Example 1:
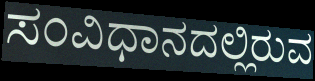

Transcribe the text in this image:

ಸಂವಿಧಾನದಲ್ಲಿರುವ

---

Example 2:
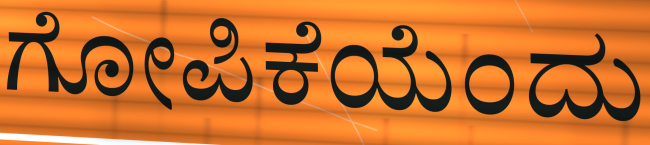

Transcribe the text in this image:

ಗೋಪಿಕೆಯೆಂದು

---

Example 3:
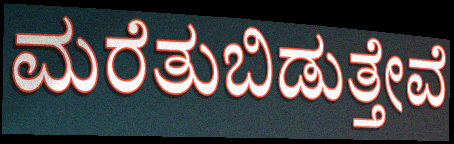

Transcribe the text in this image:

ಮರೆತುಬಿಡುತ್ತೇವೆ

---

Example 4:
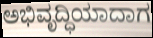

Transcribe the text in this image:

ಅಭಿವೃದ್ಧಿಯಾದಾಗ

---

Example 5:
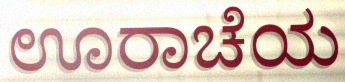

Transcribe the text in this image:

ಊರಾಚೆಯ